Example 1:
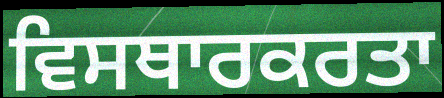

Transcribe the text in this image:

ਵਿਸਥਾਰਕਰਤਾ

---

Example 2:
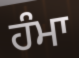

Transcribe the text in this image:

ਹੰਮਾ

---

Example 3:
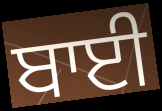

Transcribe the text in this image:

ਬਾਈ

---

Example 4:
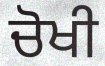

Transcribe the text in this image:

ਚੋਖੀ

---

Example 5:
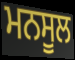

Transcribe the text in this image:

ਮਨਸੂਲ